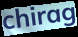
chirag